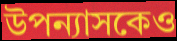
উপন্যাসকেও